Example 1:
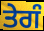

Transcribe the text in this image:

ਤੇਗੰ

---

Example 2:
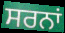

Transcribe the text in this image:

ਸਰਨਾਂ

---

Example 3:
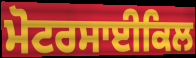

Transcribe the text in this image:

ਮੋਟਰਸਾਈਕਿਲ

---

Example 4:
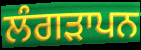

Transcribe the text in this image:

ਲੰਗੜਾਪਨ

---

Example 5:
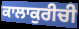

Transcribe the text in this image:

ਕਾਲਾਕੁਰੀਚੀ